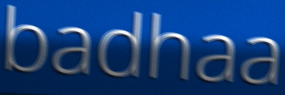
badhaa